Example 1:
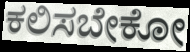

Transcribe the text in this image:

ಕಲಿಸಬೇಕೋ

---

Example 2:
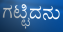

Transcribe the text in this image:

ಗಟ್ಟಿದನು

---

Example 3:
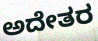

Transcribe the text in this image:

ಅದೇತರ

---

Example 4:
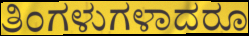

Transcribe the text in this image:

ತಿಂಗಳುಗಳಾದರೂ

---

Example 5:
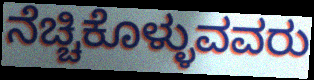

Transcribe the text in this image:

ನೆಚ್ಚಿಕೊಳ್ಳುವವರು